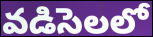
వడిసెలలో